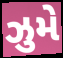
ઝુમે